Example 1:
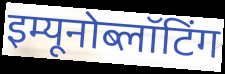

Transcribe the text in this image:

इम्यूनोब्लॉटिंग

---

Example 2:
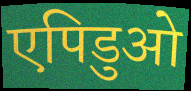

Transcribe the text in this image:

एपिडुओ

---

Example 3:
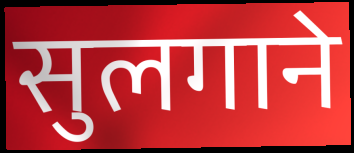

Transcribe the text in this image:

सुलगाने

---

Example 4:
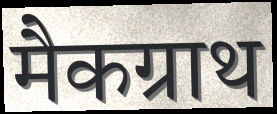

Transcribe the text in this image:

मैकग्राथ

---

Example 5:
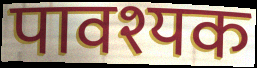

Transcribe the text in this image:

पावश्यक